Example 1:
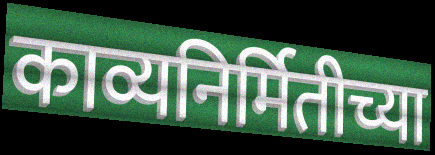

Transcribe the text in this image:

काव्यनिर्मितीच्या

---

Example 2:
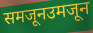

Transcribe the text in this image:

समजूनउमजून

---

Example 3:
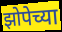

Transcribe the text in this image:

झोपेच्या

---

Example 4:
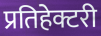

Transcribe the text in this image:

प्रतिहेक्टरी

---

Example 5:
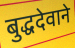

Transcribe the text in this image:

बुद्धदेवाने